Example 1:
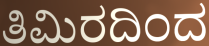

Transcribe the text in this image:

ತಿಮಿರದಿಂದ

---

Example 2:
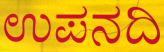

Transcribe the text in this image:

ಉಪನದಿ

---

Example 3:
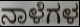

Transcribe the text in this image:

ನಾಳೆಗಳ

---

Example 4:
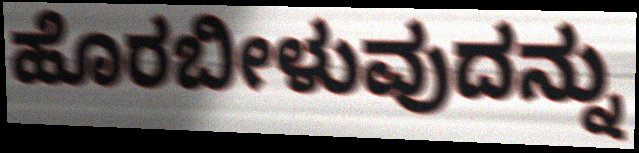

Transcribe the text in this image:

ಹೊರಬೀಳುವುದನ್ನು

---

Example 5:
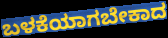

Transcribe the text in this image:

ಬಳಕೆಯಾಗಬೇಕಾದ